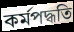
কর্মপদ্ধতি